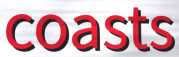
coasts